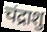
चंद्राशु